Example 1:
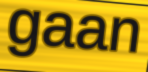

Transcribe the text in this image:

gaan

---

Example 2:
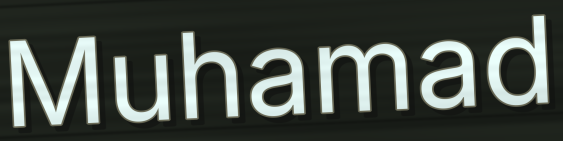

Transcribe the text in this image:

Muhamad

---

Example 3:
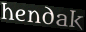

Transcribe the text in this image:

hendak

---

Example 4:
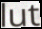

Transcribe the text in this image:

lut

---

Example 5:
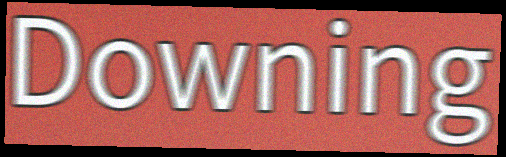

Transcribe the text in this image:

Downing